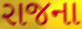
રાજના